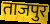
ताजपुर